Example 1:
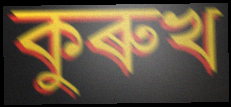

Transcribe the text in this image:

কুৰুখ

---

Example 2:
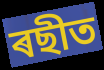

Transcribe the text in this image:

ৰছীত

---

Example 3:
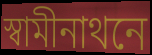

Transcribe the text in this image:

স্বামীনাথনে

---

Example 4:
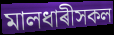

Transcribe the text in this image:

মালধাৰীসকল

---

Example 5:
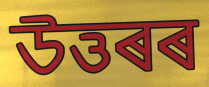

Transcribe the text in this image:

উত্তৰৰ